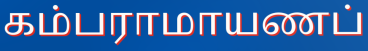
கம்பராமாயணப்